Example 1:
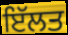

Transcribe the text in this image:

ਇੱਲਤ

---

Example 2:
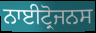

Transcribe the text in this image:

ਨਾਈਟ੍ਰੋਜਨਸ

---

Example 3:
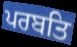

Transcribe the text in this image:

ਪਰਬਤਿ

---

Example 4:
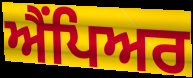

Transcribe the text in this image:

ਐਂਪਿਅਰ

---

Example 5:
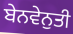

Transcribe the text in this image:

ਬੇਨਵੇਨੁਤੀ